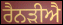
ਰੈਨੜੀਐ